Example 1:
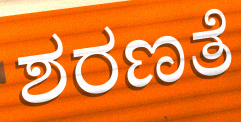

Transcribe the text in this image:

ಶರಣತೆ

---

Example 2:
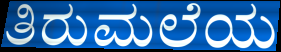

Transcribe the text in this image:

ತಿರುಮಲೆಯ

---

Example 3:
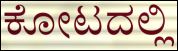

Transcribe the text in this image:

ಕೋಟದಲ್ಲಿ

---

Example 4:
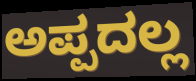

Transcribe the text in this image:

ಅಪ್ಪದಲ್ಲ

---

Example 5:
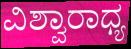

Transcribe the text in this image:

ವಿಶ್ವಾರಾಧ್ಯ